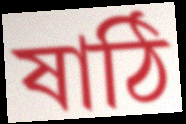
ষাঠি